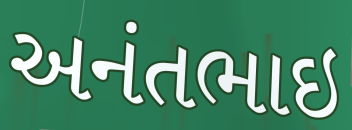
અનંતભાઇ